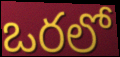
ఒరలో